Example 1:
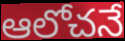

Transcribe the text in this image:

ఆలోచనే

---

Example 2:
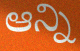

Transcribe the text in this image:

ఆన్ని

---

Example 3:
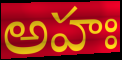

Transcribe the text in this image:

అహః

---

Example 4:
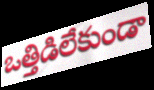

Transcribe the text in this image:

ఒత్తిడిలేకుండా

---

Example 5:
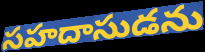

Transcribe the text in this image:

సహదాసుడను